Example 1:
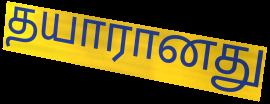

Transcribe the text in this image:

தயாரானது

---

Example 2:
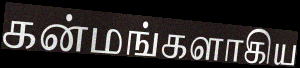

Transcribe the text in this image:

கன்மங்களாகிய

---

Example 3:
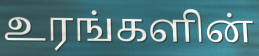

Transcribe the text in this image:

உரங்களின்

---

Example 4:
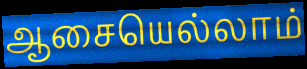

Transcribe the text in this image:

ஆசையெல்லாம்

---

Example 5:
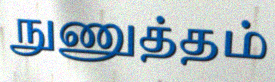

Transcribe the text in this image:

நுணுத்தம்